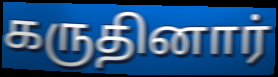
கருதினார்